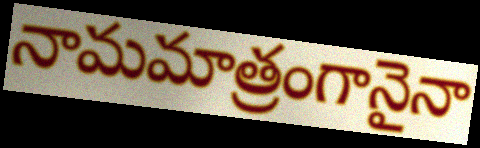
నామమాత్రంగానైనా